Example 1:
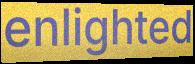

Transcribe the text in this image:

enlighted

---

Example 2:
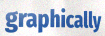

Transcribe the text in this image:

graphically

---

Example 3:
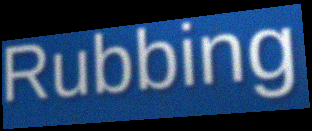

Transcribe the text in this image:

Rubbing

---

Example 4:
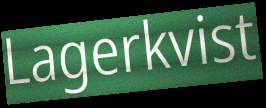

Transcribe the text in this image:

Lagerkvist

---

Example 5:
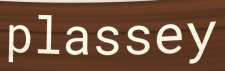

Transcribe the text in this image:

plassey